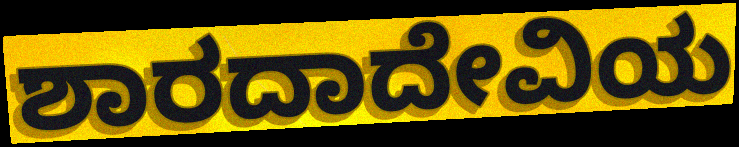
ಶಾರದಾದೇವಿಯ